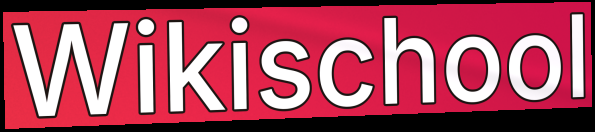
Wikischool